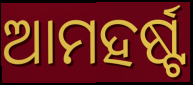
ଆମହର୍ଷ୍ଟ